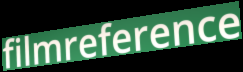
filmreference